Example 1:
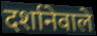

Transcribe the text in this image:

दर्शानेवाले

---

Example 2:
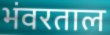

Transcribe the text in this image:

भंवरताल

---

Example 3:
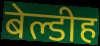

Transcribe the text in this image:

बेल्डीह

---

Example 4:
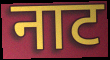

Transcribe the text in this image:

नाट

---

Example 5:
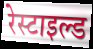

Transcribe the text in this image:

रेस्टाइल्ड